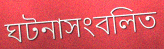
ঘটনাসংবলিত